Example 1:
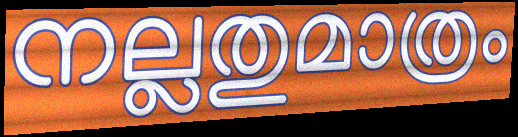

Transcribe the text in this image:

നല്ലതുമാത്രം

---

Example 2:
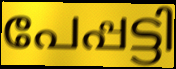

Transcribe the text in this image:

പേപ്പട്ടി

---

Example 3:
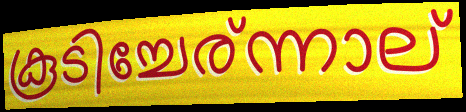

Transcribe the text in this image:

കൂടിച്ചേര്ന്നാല്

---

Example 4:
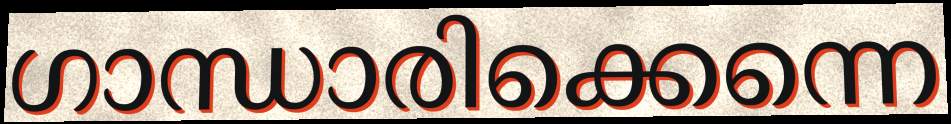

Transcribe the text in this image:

ഗാന്ധാരിക്കെന്നെ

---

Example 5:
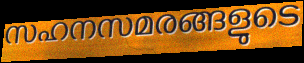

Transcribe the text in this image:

സഹനസമരങ്ങളുടെ